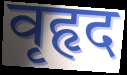
वृहृद